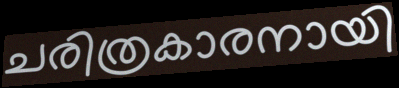
ചരിത്രകാരനായി